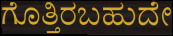
ಗೊತ್ತಿರಬಹುದೇ